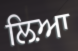
ਲ਼ਿਆ